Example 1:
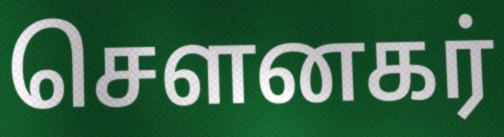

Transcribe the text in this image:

சௌனகர்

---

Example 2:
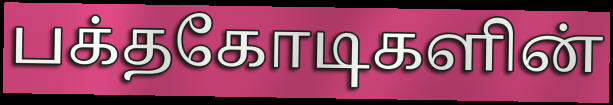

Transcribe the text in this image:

பக்தகோடிகளின்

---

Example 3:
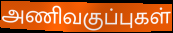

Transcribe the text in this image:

அணிவகுப்புகள்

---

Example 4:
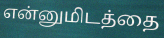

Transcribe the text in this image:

என்னுமிடத்தை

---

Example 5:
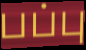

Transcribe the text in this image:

பப்பு